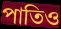
পাতিও